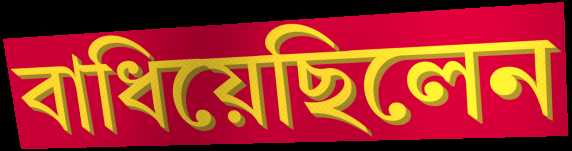
বাধিয়েছিলেন